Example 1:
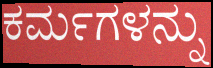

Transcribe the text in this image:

ಕರ್ಮಗಳನ್ನು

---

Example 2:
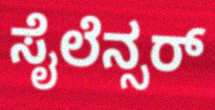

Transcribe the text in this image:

ಸೈಲೆನ್ಸರ್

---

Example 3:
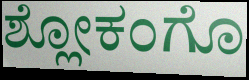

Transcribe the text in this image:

ಶ್ಲೋಕಂಗೊ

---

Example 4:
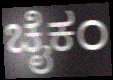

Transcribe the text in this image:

ಚೈಕಂ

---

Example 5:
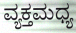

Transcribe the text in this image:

ವ್ಯಕ್ತಮಧ್ಯ